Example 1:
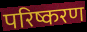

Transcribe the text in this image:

परिष्करण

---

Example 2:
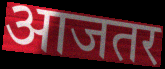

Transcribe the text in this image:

आजतर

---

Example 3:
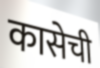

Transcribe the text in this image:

कासेची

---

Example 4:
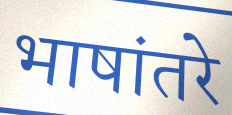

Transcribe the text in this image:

भाषांतरे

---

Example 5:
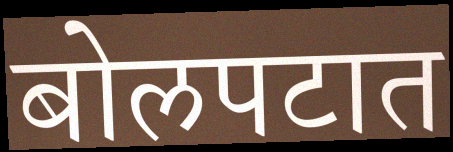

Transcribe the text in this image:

बोलपटात